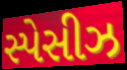
સ્પેસીઝ